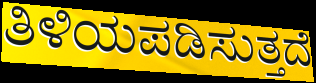
ತಿಳಿಯಪಡಿಸುತ್ತದೆ